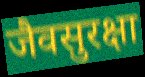
जैवसुरक्षा